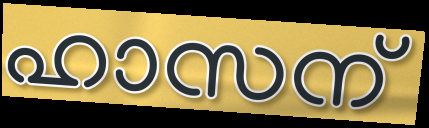
ഹാസന്